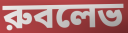
রুবলেভ